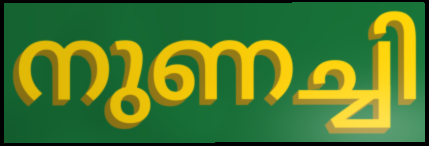
നുണച്ചി